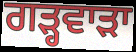
ਗੜ੍ਹਵਾੜਾ